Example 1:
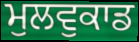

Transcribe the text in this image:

ਮੁਲਵੁਕਾਡ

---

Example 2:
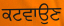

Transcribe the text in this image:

ਕਟਵਾਉਣ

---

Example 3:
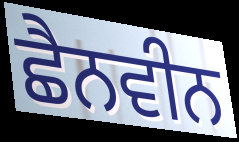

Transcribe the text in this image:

ਛੈਨਵੀਨ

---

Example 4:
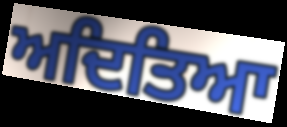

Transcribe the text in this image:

ਅਦਿਤਿਆ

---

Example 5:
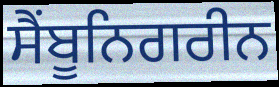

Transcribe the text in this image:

ਸੈਂਬੂਨਿਗਰੀਨ